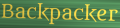
Backpacker